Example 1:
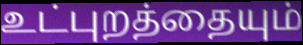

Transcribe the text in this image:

உட்புறத்தையும்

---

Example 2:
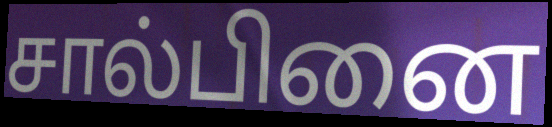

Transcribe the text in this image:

சால்பினை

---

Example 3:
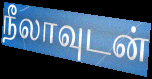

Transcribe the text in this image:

நீலாவுடன்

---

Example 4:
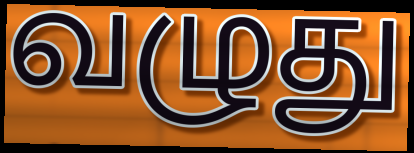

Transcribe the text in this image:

வழுது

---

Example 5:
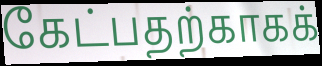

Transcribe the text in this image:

கேட்பதற்காகக்